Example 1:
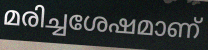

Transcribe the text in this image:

മരിച്ചശേഷമാണ്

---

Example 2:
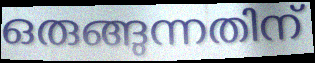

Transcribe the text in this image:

ഒരുങ്ങുന്നതിന്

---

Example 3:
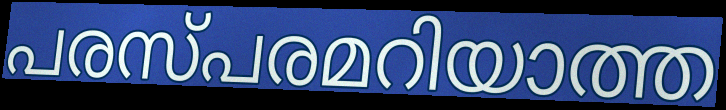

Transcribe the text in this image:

പരസ്പരമറിയാത്ത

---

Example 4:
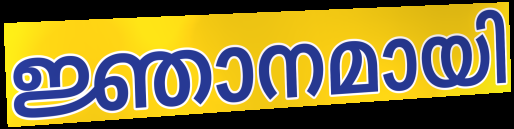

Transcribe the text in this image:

ജ്ഞാനമായി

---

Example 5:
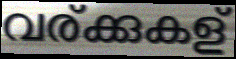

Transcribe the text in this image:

വര്ക്കുകള്